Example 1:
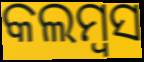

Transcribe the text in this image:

କଲମ୍ବସ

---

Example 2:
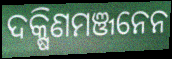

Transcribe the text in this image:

ଦକ୍ଷିଣମଞ୍ଜନେନ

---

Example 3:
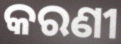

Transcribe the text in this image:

କରଣୀ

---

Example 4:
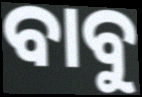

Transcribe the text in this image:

ବାବୁ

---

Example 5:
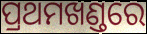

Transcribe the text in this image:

ପ୍ରଥମଖଣ୍ଡରେ